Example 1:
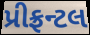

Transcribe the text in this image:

પ્રીફ્રન્ટલ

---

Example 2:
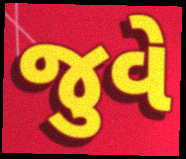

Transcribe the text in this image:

જુવે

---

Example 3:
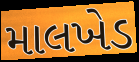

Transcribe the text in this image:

માલખેડ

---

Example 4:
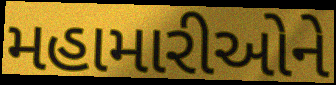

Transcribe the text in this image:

મહામારીઓને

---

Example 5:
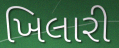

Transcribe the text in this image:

ખિલારી